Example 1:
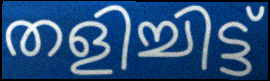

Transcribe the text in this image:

തളിച്ചിട്ട്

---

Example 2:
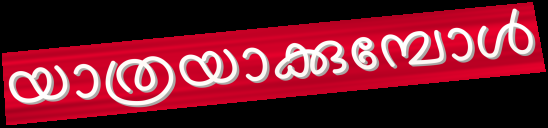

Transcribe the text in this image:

യാത്രയാക്കുമ്പോൾ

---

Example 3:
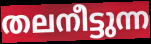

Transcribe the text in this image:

തലനീട്ടുന്ന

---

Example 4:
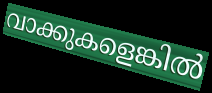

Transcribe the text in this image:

വാക്കുകളെങ്കിൽ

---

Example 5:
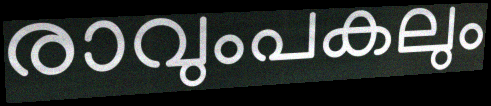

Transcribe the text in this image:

രാവുംപകലും